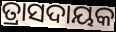
ତ୍ରାସଦାୟକ